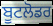
ਬੂਟਲੋਡਰ